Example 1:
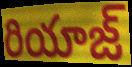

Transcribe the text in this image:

రియాజ్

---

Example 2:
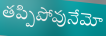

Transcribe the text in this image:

తప్పిపోవునేమో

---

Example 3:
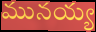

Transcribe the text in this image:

మునయ్య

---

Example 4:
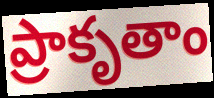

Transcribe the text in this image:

ప్రాకృతాం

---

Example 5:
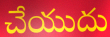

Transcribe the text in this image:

చేయుదు